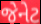
જેનેટ